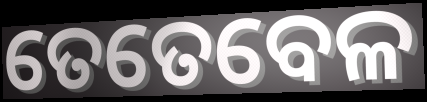
ତେତେବେଳ